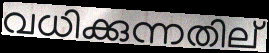
വധിക്കുന്നതില്